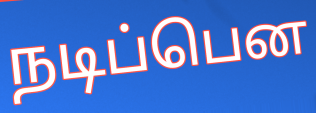
நடிப்பென